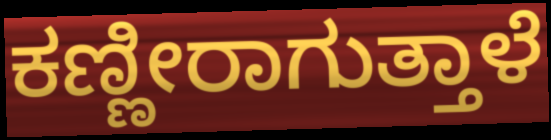
ಕಣ್ಣೀರಾಗುತ್ತಾಳೆ